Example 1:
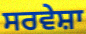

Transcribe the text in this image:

ਸਰਵੇਸ਼ਾ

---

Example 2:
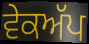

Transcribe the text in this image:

ਵੇਕਅੱਪ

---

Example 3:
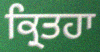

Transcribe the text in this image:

ਕ੍ਰਿਤਹਾ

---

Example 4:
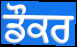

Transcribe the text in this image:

ਡੌਕਰ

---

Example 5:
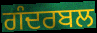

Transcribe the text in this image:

ਗੰਦਰਬਲ